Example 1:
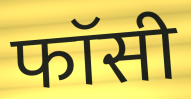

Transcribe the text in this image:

फॉसी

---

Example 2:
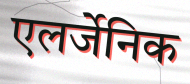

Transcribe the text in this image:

एलर्जेनिक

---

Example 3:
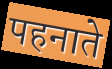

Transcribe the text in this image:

पहनाते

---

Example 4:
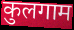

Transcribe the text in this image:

कुलगाम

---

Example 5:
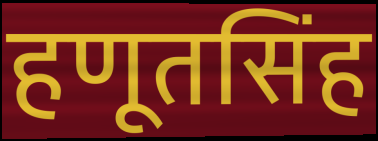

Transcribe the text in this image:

हणूतसिंह